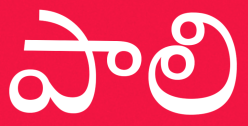
పాలి